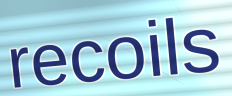
recoils